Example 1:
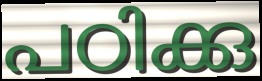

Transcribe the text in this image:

പഠിക്കു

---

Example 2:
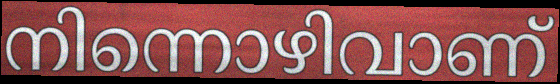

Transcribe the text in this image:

നിന്നൊഴിവാണ്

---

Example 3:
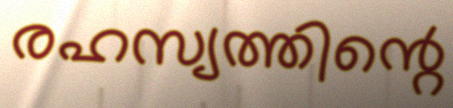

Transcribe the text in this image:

രഹസ്യത്തിന്റെ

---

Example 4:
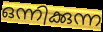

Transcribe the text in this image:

ഒന്നിക്കുന്ന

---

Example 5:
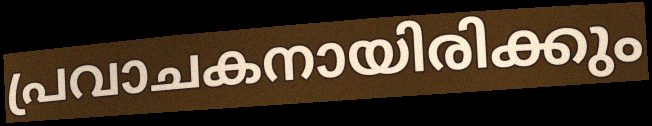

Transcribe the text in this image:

പ്രവാചകനായിരിക്കും